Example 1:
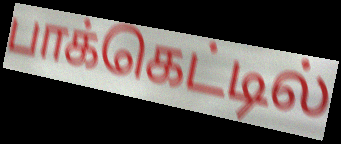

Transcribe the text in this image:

பாக்கெட்டில்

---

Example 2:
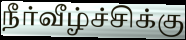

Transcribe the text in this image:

நீர்வீழ்ச்சிக்கு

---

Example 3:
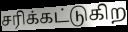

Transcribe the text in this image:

சரிக்கட்டுகிற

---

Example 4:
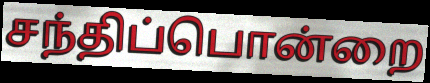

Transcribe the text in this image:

சந்திப்பொன்றை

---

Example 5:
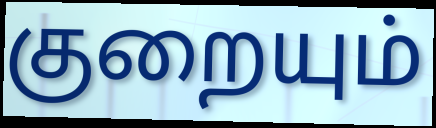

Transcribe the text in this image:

குறையும்